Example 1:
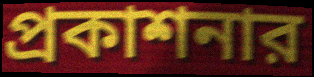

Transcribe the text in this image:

প্রকাশনার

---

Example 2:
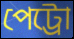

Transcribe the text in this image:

পেট্রো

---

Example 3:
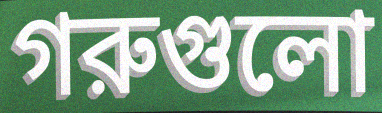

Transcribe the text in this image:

গরুগুলো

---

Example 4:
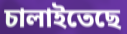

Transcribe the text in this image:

চালাইতেছে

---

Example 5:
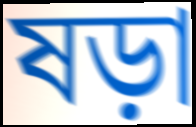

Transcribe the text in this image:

ষড়া